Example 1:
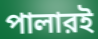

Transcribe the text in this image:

পালারই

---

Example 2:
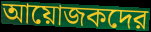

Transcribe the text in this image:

আয়োজকদের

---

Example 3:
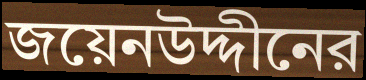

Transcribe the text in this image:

জয়েনউদ্দীনের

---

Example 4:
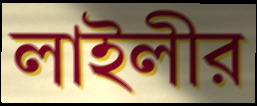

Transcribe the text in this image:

লাইলীর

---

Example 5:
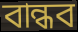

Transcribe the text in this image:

বান্ধব